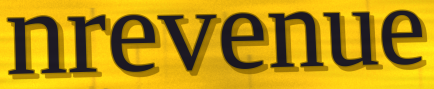
nrevenue